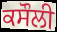
ਕਸੌਲੀ